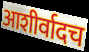
आशीर्वादच